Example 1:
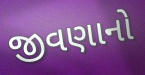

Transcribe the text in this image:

જીવણાનો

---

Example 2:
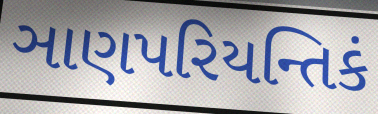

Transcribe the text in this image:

ઞાણપરિયન્તિકં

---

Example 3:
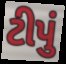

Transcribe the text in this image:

ટીપું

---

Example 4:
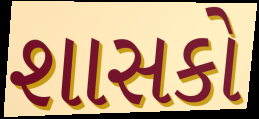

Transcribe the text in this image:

શાસકો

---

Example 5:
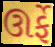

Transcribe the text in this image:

ઊર્ફે